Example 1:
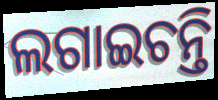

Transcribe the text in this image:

ଲଗାଇଚନ୍ତି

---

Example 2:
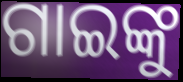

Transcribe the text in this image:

ଗାଇଙ୍କୁ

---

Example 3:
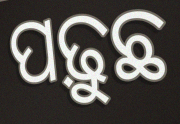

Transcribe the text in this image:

ପଢ଼ୁଛ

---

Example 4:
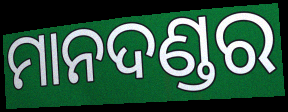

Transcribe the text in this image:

ମାନଦଣ୍ଡର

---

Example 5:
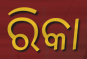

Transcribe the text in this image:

ରିକା